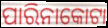
ପାରିନାକୋଟା